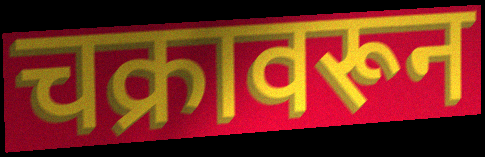
चक्रावरून